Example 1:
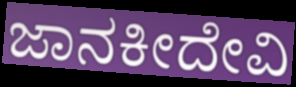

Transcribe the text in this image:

ಜಾನಕೀದೇವಿ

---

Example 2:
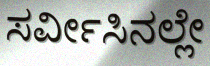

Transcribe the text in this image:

ಸರ್ವೀಸಿನಲ್ಲೇ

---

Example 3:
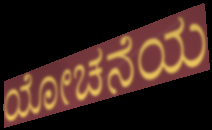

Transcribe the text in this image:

ಯೋಚನೆಯ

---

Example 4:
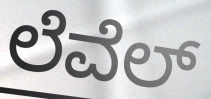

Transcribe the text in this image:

ಲೆವೆಲ್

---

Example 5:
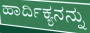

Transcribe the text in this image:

ಹಾರ್ದಿಕ್ಯನನ್ನು